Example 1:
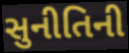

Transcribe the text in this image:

સુનીતિની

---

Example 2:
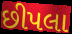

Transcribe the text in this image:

છીપલા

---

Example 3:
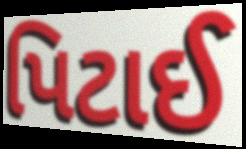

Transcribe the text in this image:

પિટાઈ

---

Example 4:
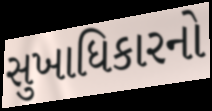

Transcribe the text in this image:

સુખાધિકારનો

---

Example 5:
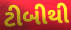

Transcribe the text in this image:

ટીબીથી